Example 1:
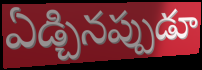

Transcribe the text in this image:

ఏడ్చినప్పుడూ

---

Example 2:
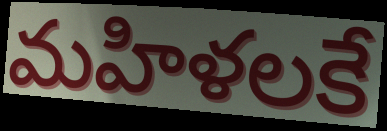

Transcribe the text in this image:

మహిళలకే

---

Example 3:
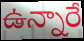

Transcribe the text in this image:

ఉన్నారే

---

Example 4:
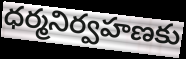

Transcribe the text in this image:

ధర్మనిర్వహణకు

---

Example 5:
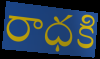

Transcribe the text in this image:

రాధకి